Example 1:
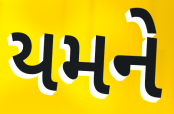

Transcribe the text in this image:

યમને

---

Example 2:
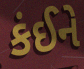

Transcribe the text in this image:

કંઈને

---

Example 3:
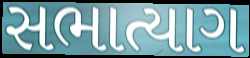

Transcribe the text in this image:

સભાત્યાગ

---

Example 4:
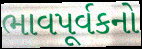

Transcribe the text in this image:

ભાવપૂર્વકનો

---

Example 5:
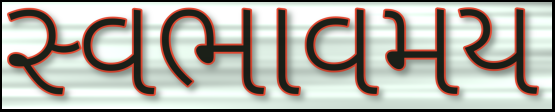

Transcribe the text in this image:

સ્વભાવમય